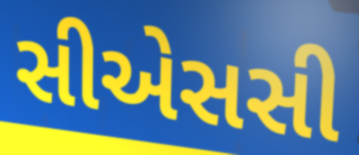
સીએસસી